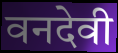
वनदेवी